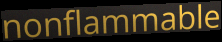
nonflammable